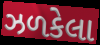
ઝળકેલા